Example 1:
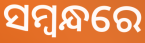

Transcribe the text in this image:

ସମ୍ୱନ୍ଧରେ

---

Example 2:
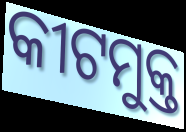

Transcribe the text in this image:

କୀଟମୁକ୍ତ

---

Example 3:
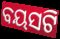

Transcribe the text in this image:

ବୟସଟି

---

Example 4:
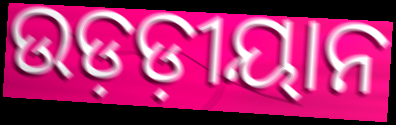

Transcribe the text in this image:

ଉଡ଼ଡ଼ୀୟାନ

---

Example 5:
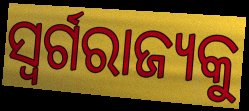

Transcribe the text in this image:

ସ୍ଵର୍ଗରାଜ୍ୟକୁ